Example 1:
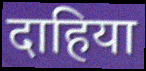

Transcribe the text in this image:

दाहिया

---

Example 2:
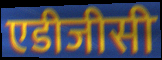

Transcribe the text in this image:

एडीजीसी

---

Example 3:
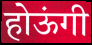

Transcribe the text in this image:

होऊंगी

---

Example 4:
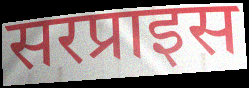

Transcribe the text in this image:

सरप्राइस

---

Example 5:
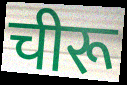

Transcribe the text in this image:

चीरू